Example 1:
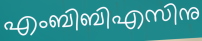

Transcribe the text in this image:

എംബിബിഎസിനു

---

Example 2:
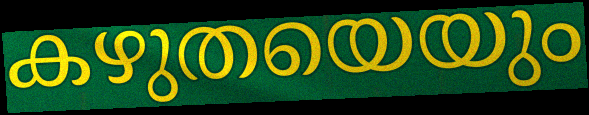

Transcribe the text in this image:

കഴുതയെയും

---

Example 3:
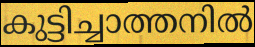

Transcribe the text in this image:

കുട്ടിച്ചാത്തനിൽ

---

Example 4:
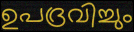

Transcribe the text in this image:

ഉപദ്രവിച്ചും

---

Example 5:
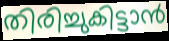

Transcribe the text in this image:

തിരിച്ചുകിട്ടാൻ